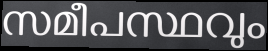
സമീപസ്ഥവും